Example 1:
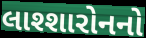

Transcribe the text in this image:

લાશ્શારોનનો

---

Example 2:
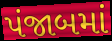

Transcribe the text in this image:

પંજાબમાં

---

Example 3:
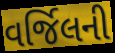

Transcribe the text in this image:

વર્જિલની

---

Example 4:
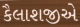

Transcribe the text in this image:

કૈલાશજીએ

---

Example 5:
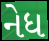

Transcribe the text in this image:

નેધ